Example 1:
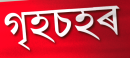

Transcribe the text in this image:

গৃহচহৰ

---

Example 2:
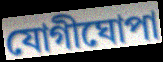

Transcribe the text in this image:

যোগীঘোপা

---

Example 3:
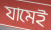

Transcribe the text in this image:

যামেই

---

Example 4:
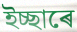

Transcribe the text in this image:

ইচ্ছাৰে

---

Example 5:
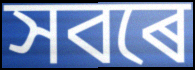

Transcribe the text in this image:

সবৰে